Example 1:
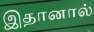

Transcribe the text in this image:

இதானால்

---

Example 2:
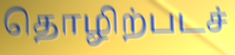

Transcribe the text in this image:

தொழிற்படச்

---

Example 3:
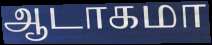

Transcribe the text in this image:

ஆடாகமா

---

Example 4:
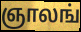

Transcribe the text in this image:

ஞாலங்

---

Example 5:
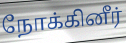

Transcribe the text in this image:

நோக்கினீர்